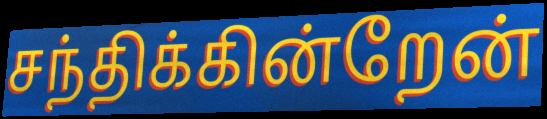
சந்திக்கின்றேன்